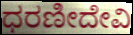
ಧರಣೀದೇವಿ